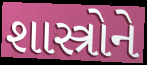
શાસ્ત્રોને